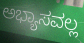
ಅಭ್ಯಾಸವಲ್ಲ